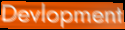
Devlopment